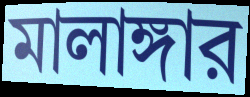
মালাঙ্গার